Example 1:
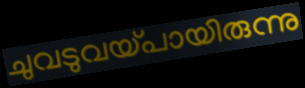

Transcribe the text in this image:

ചുവടുവയ്പായിരുന്നു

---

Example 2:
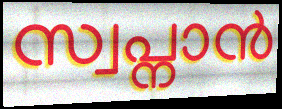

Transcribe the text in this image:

സ്വപ്നാൻ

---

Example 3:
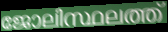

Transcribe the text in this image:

ജോലിസ്ഥലത്ത്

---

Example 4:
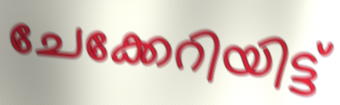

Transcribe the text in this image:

ചേക്കേറിയിട്ട്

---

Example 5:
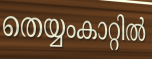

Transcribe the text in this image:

തെയ്യംകാറ്റിൽ